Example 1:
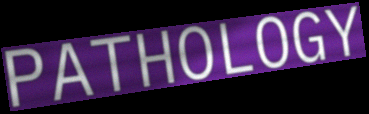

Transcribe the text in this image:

PATHOLOGY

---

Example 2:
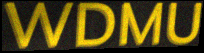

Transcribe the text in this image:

WDMU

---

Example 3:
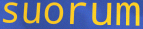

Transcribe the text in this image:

suorum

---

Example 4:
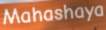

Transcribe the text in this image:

Mahashaya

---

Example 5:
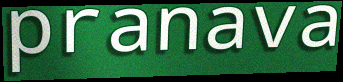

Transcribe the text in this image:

pranava